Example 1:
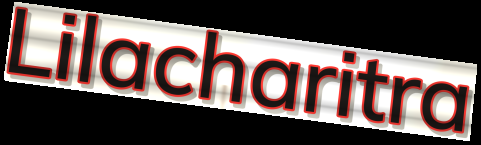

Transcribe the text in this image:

Lilacharitra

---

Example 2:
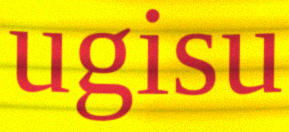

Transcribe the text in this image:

ugisu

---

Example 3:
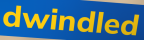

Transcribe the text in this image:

dwindled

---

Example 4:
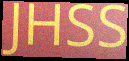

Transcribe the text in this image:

JHSS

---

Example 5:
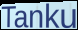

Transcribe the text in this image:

Tanku